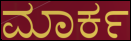
ಮಾರ್ಕ